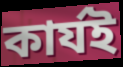
কাৰ্যই